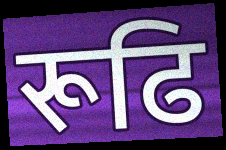
रूढि